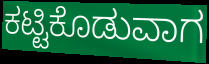
ಕಟ್ಟಿಕೊಡುವಾಗ